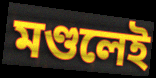
মণ্ডলেই